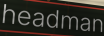
headman